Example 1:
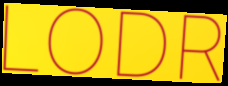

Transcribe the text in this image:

LODR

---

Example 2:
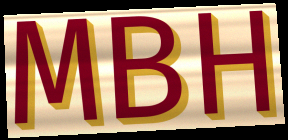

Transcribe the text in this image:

MBH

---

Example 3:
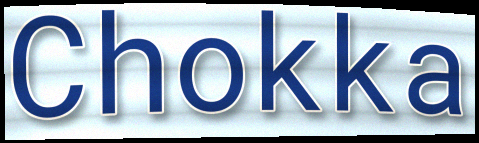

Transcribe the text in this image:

Chokka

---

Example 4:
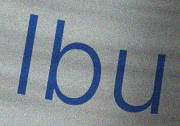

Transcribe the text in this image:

Ibu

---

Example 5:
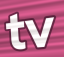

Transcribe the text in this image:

tv